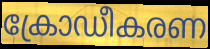
ക്രോഡീകരണ